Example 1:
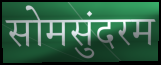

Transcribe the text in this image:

सोमसुंदरम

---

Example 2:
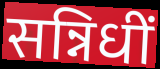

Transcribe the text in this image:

सन्निधीं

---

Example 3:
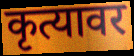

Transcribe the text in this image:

कृत्यावर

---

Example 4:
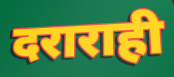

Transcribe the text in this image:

दराराही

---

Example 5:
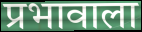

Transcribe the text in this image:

प्रभावाला